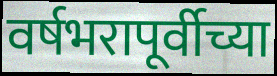
वर्षभरापूर्वीच्या